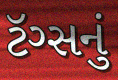
ટૅગ્સનું